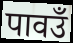
पावउँ